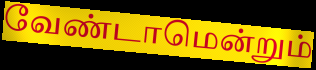
வேண்டாமென்றும்